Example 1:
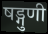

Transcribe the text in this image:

षड्गुणी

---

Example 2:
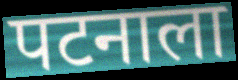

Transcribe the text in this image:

पटनाला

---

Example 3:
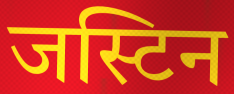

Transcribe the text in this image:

जस्टिन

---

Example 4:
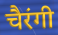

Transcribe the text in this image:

चैरंगी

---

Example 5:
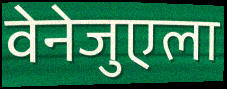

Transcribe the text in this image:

वेनेजुएला